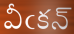
వీఁకన్